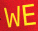
WE